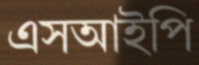
এসআইপি